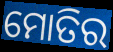
ମୋତିର